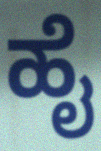
ಹೈ